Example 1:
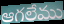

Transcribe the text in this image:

ఆగలేము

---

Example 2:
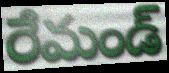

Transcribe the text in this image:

రేమండ్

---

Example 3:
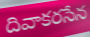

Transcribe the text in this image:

దివాకరసేన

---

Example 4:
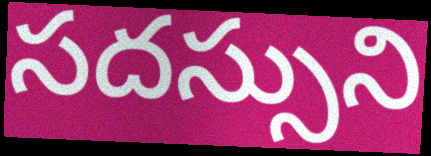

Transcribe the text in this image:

సదస్సుని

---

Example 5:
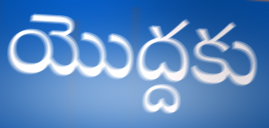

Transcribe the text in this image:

యొద్దకు